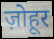
ज़ोहूर